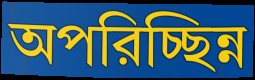
অপরিচ্ছিন্ন